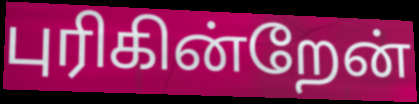
புரிகின்றேன்